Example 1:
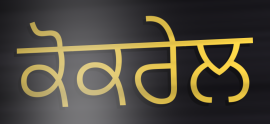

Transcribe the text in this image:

ਕੋਕਰੇਲ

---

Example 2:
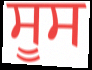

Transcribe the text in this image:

ਸੂਸ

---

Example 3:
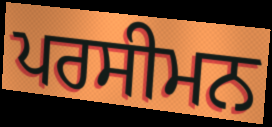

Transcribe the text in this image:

ਪਰਸੀਮਨ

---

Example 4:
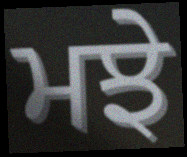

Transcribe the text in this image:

ਮਝੇ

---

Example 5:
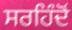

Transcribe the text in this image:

ਸਰਹਿੰਦੋਂ